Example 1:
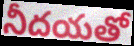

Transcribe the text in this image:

నీదయతో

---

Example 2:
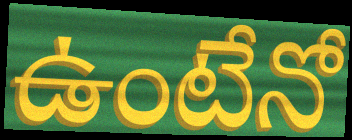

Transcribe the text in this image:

ఉంటేనో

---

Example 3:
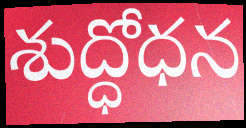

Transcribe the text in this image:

శుద్ధోధన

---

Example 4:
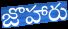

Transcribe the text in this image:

జొహారు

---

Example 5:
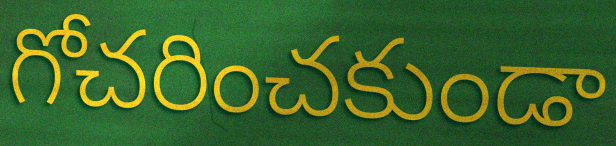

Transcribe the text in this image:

గోచరించకుండా